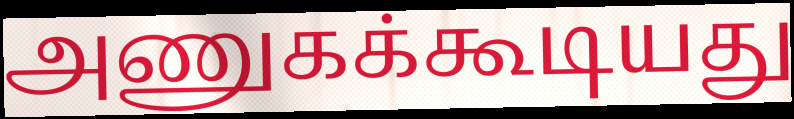
அணுகக்கூடியது